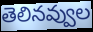
తెలినవ్వుల